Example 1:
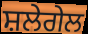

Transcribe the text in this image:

ਸ਼ਲੇਗੇਲ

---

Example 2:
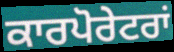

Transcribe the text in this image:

ਕਾਰਪੋਰੇਟਰਾਂ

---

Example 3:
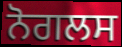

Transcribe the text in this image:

ਨੋਗਲਸ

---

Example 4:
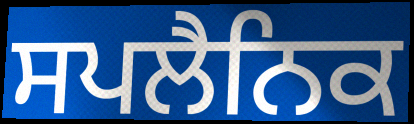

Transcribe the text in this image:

ਸਪਲੈਨਿਕ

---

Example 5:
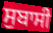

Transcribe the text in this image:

ਸੁਬਾਸੀ